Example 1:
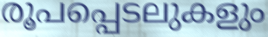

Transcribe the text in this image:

രൂപപ്പെടലുകളും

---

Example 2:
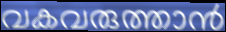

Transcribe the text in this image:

വകവരുത്താൻ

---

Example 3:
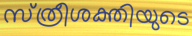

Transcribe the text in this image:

സ്‌ത്രീശക്തിയുടെ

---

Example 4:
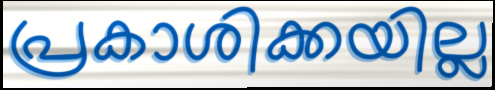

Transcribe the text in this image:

പ്രകാശിക്കയില്ല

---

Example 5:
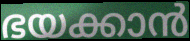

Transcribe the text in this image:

ഭയക്കാൻ